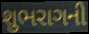
શુભરાગની